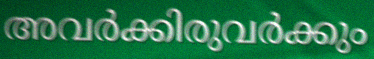
അവർക്കിരുവർക്കും